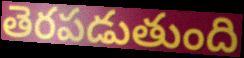
తెరపడుతుంది